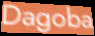
Dagoba